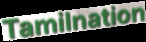
Tamilnation